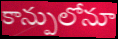
కాన్పులోనూ